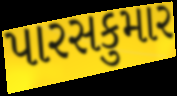
પારસકુમાર